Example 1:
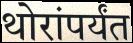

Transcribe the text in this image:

थोरांपर्यंत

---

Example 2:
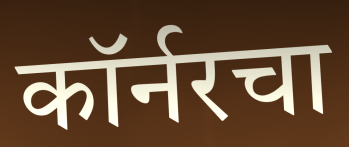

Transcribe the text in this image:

कॉर्नरचा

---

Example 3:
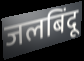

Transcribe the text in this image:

जलबिंदू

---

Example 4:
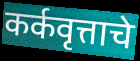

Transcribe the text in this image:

कर्कवृत्ताचे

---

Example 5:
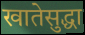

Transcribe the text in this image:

खातेसुद्धा